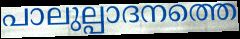
പാലുല്പാദനത്തെ